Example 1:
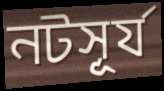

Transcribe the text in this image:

নটসূর্য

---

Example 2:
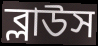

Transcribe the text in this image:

ব্লাউস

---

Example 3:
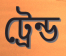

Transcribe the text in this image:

ট্রেন্ড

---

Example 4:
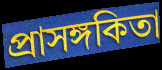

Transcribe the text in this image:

প্রাসঙ্গকিতা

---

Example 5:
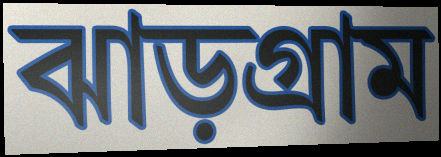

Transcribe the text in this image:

ঝাড়গ্রাম